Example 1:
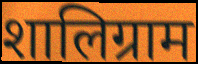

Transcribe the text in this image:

शालिग्राम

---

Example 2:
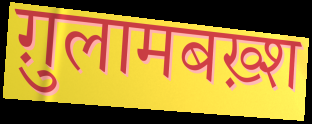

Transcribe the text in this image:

ग़ुलामबख़्श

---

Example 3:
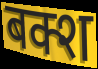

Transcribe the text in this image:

बक्श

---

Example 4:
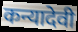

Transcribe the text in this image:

कन्यादेवी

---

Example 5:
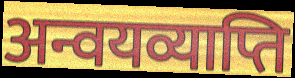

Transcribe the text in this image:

अन्वयव्याप्ति